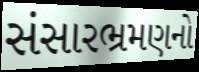
સંસારભ્રમણનો